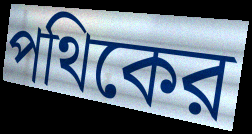
পথিকের